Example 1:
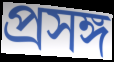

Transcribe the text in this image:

প্রসঙ্গ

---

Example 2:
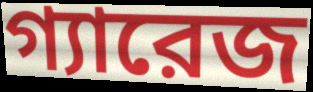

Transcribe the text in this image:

গ্যারেজ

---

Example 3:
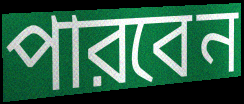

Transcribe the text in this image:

পারবেন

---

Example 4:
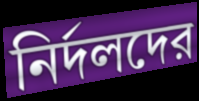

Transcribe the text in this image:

নির্দলদের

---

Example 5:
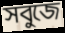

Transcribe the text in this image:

সবুজে